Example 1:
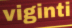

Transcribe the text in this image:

viginti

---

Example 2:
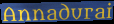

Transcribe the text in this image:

Annadurai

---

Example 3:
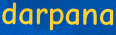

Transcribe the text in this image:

darpana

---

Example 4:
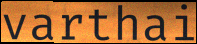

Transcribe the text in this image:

varthai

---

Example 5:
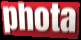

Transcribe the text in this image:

phota